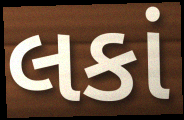
લકાં